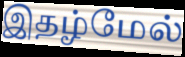
இதழ்மேல்